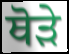
ਥੋਡ਼ੇ